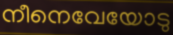
നീനെവേയോടു